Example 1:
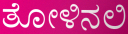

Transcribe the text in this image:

ತೋಳಿನಲಿ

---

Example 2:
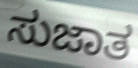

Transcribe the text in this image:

ಸುಜಾತ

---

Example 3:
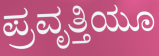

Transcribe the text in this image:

ಪ್ರವೃತ್ತಿಯೂ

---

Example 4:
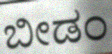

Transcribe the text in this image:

ಬೀಡಂ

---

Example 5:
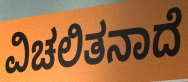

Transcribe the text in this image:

ವಿಚಲಿತನಾದೆ